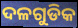
ଦଳଗୁଡିକ